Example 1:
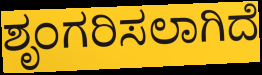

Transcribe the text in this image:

ಶೃಂಗರಿಸಲಾಗಿದೆ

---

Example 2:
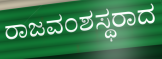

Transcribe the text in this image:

ರಾಜವಂಶಸ್ಥರಾದ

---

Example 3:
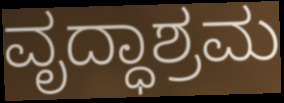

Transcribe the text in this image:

ವೃದ್ಧಾಶ್ರಮ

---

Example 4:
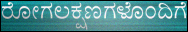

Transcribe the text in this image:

ರೋಗಲಕ್ಷಣಗಳೊಂದಿಗೆ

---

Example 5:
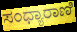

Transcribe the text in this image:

ಸಂಧ್ಯಾರಾಣಿ